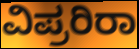
ವಿಪ್ರರಿರಾ